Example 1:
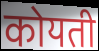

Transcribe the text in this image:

कोयती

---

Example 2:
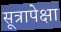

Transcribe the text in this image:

सूत्रापेक्षा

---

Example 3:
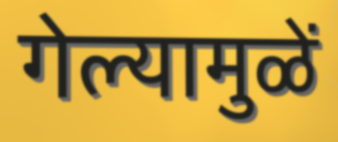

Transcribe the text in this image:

गेल्यामुळें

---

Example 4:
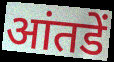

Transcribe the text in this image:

आंतडें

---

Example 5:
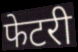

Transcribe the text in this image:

फेटरी